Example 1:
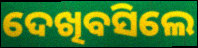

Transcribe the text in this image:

ଦେଖିବସିଲେ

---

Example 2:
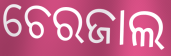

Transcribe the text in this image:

ଚେରଜାଲ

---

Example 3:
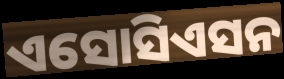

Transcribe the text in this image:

ଏସୋସିଏସନ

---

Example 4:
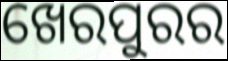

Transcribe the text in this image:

ଖେରପୁରର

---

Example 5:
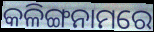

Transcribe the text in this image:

କଳିଙ୍ଗନାମରେ